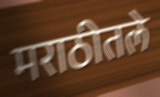
मराठीतले